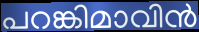
പറങ്കിമാവിൻ